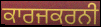
ਕਾਰਜਕਰਨੀ